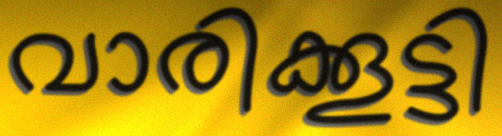
വാരിക്കൂട്ടി